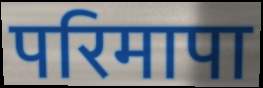
परिमापा